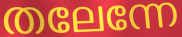
തലേന്നേ